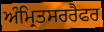
ਅੰਮ੍ਰਿਤਸਰਰੈਫਰ